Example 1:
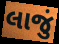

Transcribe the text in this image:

લાજું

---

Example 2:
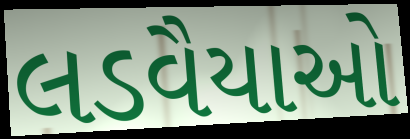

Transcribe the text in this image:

લડવૈયાઓ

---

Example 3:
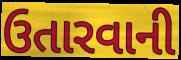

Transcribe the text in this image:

ઉતારવાની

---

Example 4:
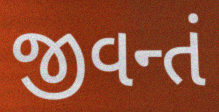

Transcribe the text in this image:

જીવન્તં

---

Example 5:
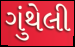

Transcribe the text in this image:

ગુંથેલી